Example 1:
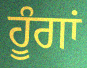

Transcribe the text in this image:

ਹੂੰਗਾਂ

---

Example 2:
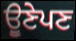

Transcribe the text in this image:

ਊਣੇਪਣ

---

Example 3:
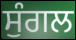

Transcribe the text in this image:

ਸੁੰਗਲ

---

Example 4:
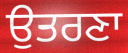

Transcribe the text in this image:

ਉਤਰਣਾ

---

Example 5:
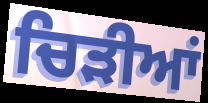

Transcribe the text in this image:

ਚਿੜੀਆਂ